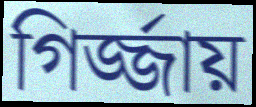
গির্জ্জায়